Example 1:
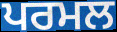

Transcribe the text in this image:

ਪਰਮਲ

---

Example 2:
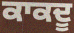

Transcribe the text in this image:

ਕਾਕਦੂ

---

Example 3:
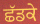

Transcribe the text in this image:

ਛੱਡਕੇ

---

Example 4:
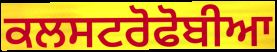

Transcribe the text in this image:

ਕਲਸਟਰੋਫੋਬੀਆ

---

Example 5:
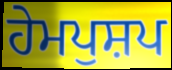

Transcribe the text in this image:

ਹੇਮਪੁਸ਼ਪ